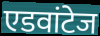
एडवांटेज